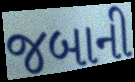
જબાની